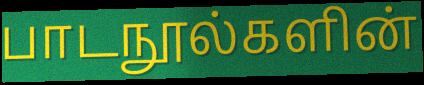
பாடநூல்களின்